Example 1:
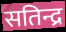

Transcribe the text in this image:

सतिन्द्र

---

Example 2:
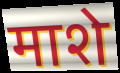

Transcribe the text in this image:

माशे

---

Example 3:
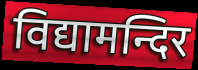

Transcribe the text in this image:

विद्यामन्दिर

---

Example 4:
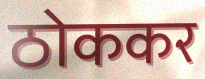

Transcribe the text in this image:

ठोककर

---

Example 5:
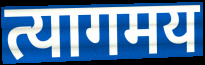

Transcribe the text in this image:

त्यागमय